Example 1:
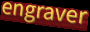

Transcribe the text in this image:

engraver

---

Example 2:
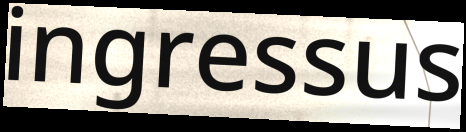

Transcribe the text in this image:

ingressus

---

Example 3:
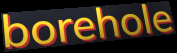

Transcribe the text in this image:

borehole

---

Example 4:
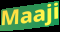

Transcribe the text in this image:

Maaji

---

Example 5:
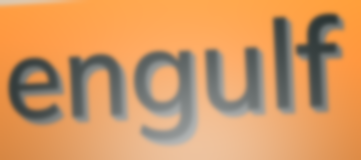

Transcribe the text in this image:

engulf